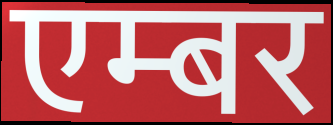
एम्बर